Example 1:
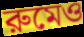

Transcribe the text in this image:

রুমেও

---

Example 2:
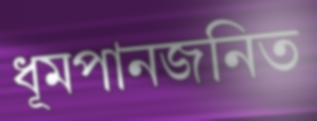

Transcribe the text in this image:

ধূমপানজনিত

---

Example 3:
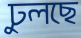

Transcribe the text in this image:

ঢুলছে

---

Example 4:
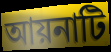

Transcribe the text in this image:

আয়নাটি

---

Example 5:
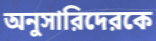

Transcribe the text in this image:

অনুসারিদেরকে